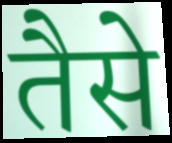
तैसे